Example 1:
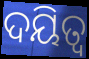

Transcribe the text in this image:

ଦୟିତ୍ୱ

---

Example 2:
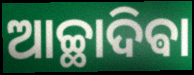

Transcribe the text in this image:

ଆଚ୍ଛାଦିଵା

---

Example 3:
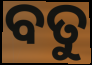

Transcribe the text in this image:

ବତୁ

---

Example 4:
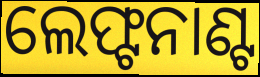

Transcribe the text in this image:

ଲେଫ୍ଟନାଣ୍ଟ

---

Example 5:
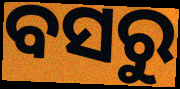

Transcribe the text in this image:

ବସରୁ